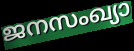
ജനസംഖ്യാ